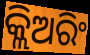
କ୍ଲିଅରିଂ